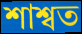
শাশ্বত